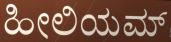
ಹೀಲಿಯಮ್